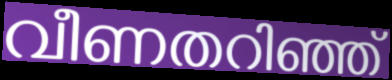
വീണതറിഞ്ഞ്